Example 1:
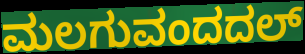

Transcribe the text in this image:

ಮಲಗುವಂದದಲ್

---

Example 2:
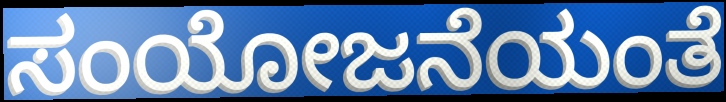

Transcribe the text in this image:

ಸಂಯೋಜನೆಯಂತೆ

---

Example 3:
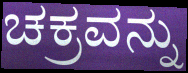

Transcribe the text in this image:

ಚಕ್ರವನ್ನು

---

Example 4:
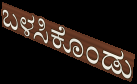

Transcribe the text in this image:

ಬಳಸಿಕೊಂಡು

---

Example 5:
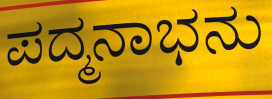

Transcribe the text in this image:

ಪದ್ಮನಾಭನು